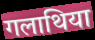
गलाथिया